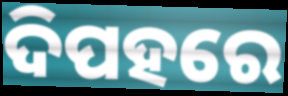
ଦିପହରେ